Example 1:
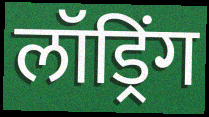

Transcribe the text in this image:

लॉड्रिंग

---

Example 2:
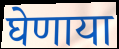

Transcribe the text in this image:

घेणाया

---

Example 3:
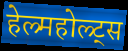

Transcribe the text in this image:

हेल्महोल्ट्स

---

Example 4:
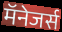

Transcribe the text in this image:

मॅनेजर्स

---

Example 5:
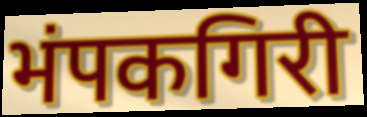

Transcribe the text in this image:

भंपकगिरी